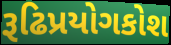
રૂઢિપ્રયોગકોશ